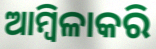
ଆମ୍ବିଳାକରି